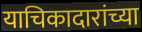
याचिकादारांच्या